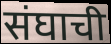
संघाची